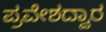
ಪ್ರವೇಶದ್ವಾರ